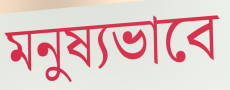
মনুষ্যভাবে